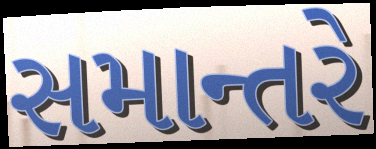
સમાન્તરે